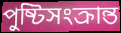
পুষ্টিসংক্রান্ত